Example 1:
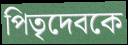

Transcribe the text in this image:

পিতৃদেবকে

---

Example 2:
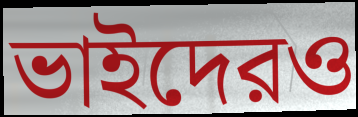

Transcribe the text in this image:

ভাইদেরও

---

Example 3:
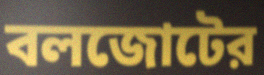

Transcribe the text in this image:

বলজোটের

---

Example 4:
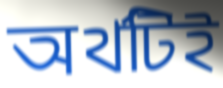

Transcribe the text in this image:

অর্থটিই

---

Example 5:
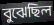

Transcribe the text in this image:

বুঝেছিল